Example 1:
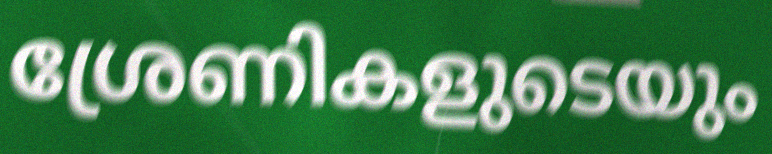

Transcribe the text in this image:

ശ്രേണികളുടെയും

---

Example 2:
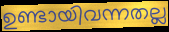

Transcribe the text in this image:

ഉണ്ടായിവന്നതല്ല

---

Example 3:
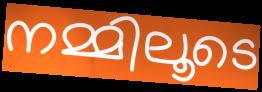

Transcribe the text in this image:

നമ്മിലൂടെ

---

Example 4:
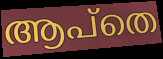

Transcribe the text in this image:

ആപ്‌തെ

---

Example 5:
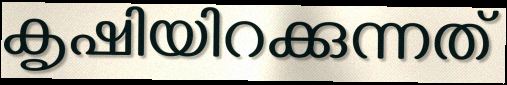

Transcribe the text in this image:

കൃഷിയിറക്കുന്നത്